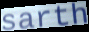
sarth